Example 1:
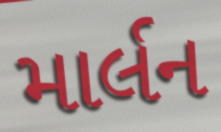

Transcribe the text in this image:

માર્લન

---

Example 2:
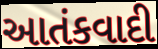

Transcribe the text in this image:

આતંકવાદી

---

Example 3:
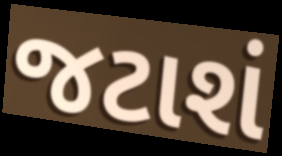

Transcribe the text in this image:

જટાશં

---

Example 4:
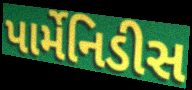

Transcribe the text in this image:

પાર્મેનિડીસ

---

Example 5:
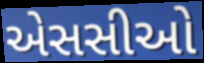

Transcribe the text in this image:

એસસીઓ